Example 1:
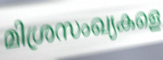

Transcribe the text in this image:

മിശ്രസംഖ്യകളെ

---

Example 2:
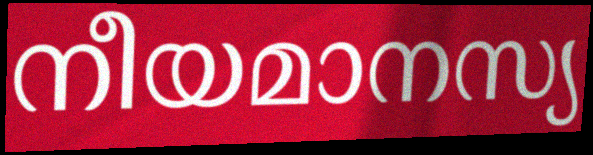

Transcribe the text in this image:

നീയമാനസ്യ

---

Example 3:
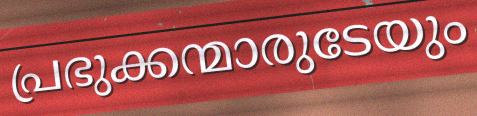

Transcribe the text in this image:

പ്രഭുക്കന്മാരുടേയും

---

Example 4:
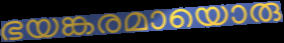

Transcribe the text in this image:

ഭയങ്കരമായൊരു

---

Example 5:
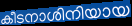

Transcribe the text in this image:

കീടനാശിനിയായ